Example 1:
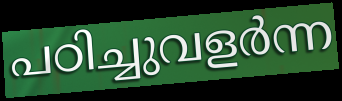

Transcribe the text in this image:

പഠിച്ചുവളർന്ന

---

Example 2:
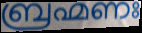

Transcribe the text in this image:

ബ്രഹ്മണഃ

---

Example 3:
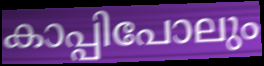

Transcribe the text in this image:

കാപ്പിപോലും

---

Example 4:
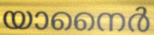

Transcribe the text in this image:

യാനൈർ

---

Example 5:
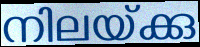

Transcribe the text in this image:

നിലയ്‌ക്കു